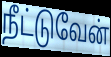
நீட்டுவேன்